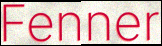
Fenner